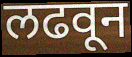
लढवून